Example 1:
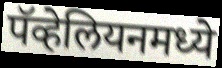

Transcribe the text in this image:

पॅव्हेलियनमध्ये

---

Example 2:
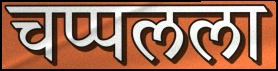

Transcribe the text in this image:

चप्पलला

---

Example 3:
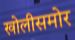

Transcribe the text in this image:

खोलीसमोर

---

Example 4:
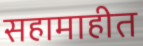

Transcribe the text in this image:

सहामाहीत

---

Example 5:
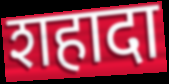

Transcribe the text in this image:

शहादा